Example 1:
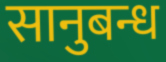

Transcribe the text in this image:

सानुबन्ध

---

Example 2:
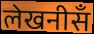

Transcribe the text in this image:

लेखनीसँ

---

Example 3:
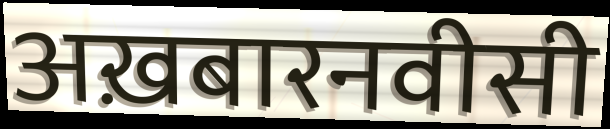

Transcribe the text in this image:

अख़बारनवीसी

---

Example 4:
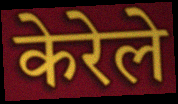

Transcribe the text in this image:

केरेले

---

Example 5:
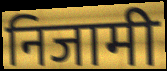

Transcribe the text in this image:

निजामी